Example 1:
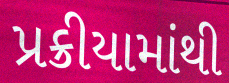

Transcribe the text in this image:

પ્રક્રીયામાંથી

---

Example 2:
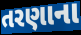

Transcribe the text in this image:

તરણાના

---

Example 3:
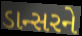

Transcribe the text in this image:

ડાન્સરને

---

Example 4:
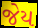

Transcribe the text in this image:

જેય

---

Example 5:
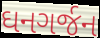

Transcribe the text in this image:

ઘનગર્જન